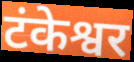
टंकेश्वर